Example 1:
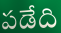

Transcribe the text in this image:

పడేది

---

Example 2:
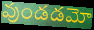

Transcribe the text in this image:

వుండడమో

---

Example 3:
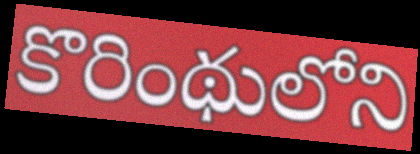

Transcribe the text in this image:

కొరింథులోని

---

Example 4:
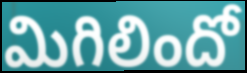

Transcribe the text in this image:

మిగిలిందో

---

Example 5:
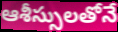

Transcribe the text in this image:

ఆశీస్సులతోనే